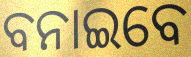
ବନାଇବେ